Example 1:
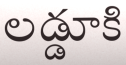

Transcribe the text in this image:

లడ్డూకి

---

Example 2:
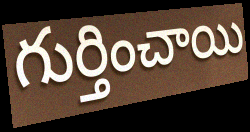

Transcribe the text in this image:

గుర్తించాయి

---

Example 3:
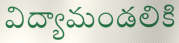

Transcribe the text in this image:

విద్యామండలికి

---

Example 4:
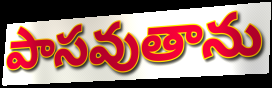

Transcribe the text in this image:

పాసవుతాను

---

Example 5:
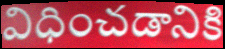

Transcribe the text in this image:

విధించడానికి